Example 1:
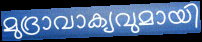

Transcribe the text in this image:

മുദ്രാവാക്യവുമായി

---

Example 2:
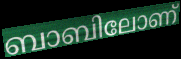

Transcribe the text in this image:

ബാബിലോണ്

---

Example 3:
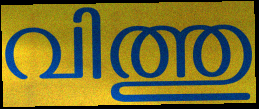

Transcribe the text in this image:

വിത്തു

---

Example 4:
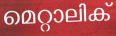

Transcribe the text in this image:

മെറ്റാലിക്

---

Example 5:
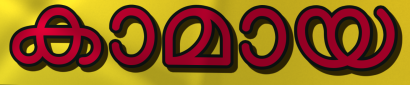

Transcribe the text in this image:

കാമായ